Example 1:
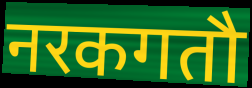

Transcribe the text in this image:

नरकगतौ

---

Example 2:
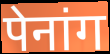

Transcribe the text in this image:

पेनांग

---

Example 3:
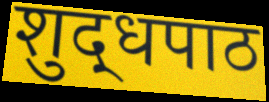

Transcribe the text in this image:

शुद्धपाठ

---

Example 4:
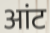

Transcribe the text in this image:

आंट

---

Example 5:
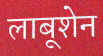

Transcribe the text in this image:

लाबूशेन